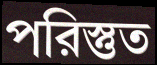
পরিস্তুত